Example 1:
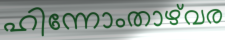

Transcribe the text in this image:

ഹിന്നോംതാഴ്‌വര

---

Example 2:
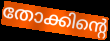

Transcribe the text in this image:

തോക്കിന്റെ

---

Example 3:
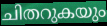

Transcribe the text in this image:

ചിതറുകയും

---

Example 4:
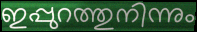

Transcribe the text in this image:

ഇപ്പുറത്തുനിന്നും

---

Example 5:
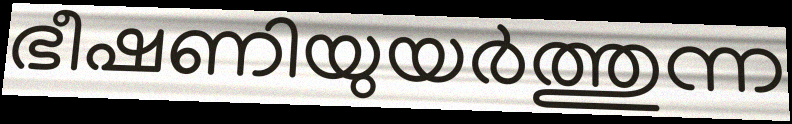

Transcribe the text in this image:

ഭീഷണിയുയർത്തുന്ന